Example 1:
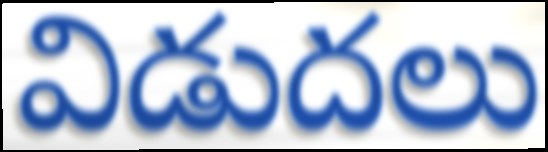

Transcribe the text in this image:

విడుదలు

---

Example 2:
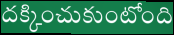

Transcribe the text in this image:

దక్కించుకుంటోంది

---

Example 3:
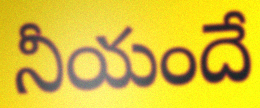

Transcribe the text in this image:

నీయందే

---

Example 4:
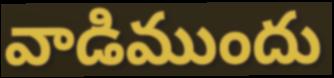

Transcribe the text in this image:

వాడిముందు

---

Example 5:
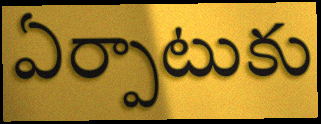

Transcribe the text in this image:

ఏర్పాటుకు